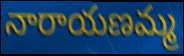
నారాయణమ్మ